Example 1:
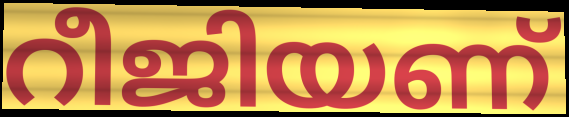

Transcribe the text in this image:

റീജിയണ്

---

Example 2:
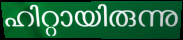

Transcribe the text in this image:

ഹിറ്റായിരുന്നു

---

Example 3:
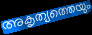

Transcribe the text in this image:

അകൃത്യത്തെയും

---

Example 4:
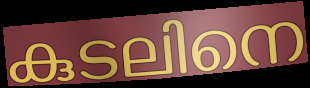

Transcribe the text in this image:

കുടലിനെ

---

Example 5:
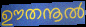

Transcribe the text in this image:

ഊതനൂൽ